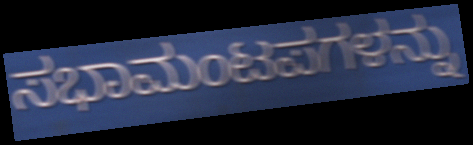
ಸಭಾಮಂಟಪಗಳನ್ನು